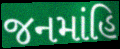
જનમાંહિ